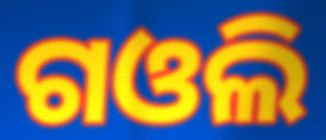
ଗଓଲି